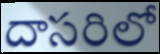
దాసరిలో